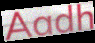
Aadh